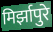
मिर्झापुरे